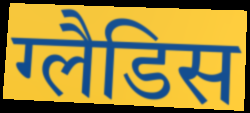
ग्लैडिस